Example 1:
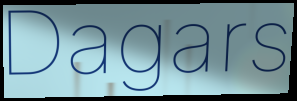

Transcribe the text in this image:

Dagars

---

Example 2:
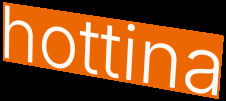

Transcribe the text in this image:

hottina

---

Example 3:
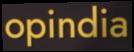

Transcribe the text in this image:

opindia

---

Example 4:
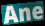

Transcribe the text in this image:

Ane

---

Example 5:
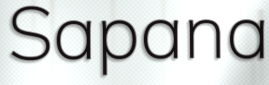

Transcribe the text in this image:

Sapana